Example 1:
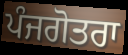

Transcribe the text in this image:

ਪੰਜਗੋਤਰਾ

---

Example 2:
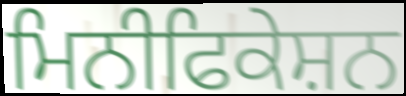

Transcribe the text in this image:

ਮਿਨੀਫਿਕੇਸ਼ਨ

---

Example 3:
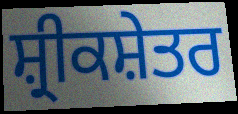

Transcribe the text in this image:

ਸ਼੍ਰੀਕਸ਼ੇਤਰ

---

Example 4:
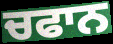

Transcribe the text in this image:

ਚਫਾਨ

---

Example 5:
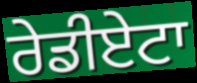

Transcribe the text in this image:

ਰੇਡੀਏਟਾ